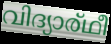
വിദ്യാര്ഥീ